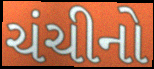
ચંચીનો